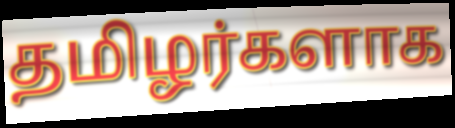
தமிழர்களாக